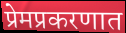
प्रेमप्रकरणात